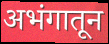
अभंगातून